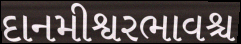
દાનમીશ્વરભાવશ્ચ